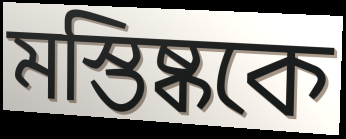
মস্তিষ্ককে